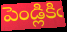
పెండ్లికిఁ